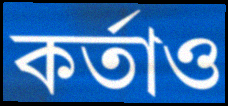
কর্তাও